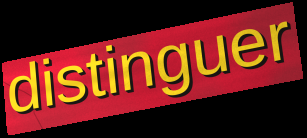
distinguer